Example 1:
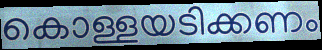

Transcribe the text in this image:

കൊള്ളയടിക്കണം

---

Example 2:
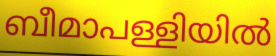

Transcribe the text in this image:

ബീമാപള്ളിയിൽ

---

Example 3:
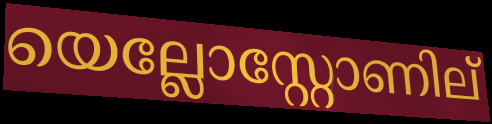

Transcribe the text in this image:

യെല്ലോസ്റ്റോണില്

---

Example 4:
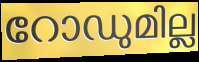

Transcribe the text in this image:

റോഡുമില്ല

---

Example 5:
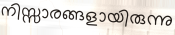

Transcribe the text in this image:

നിസ്സാരങ്ങളായിരുന്നു